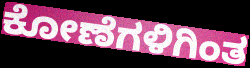
ಕೋಣೆಗಳಿಗಿಂತ